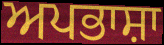
ਅਪਭਾਸ਼ਾ